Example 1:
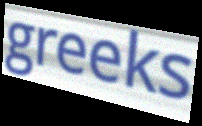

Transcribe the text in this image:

greeks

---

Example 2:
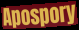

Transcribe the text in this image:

Apospory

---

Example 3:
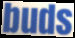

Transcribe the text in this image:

buds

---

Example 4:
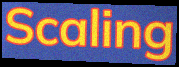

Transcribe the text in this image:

Scaling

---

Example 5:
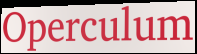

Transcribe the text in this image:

Operculum